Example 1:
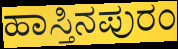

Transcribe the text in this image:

ಹಾಸ್ತಿನಪುರಂ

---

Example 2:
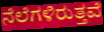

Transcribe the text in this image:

ನೆಲೆಗಳಿರುತ್ತವೆ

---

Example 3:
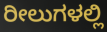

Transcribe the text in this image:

ರೀಲುಗಳಲ್ಲಿ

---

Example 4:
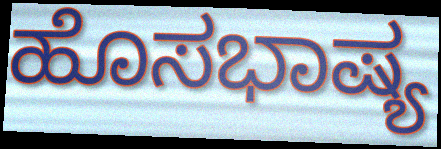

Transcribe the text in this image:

ಹೊಸಭಾಷ್ಯ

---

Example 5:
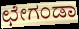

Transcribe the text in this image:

ಛೇಗಂಡಾ